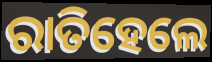
ରାତିହେଲେ